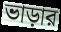
ভাড়ার